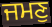
ਜਮਣੁ